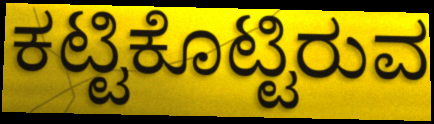
ಕಟ್ಟಿಕೊಟ್ಟಿರುವ